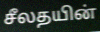
சீலதயின்